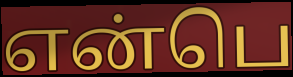
என்பெ